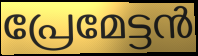
പ്രേമേട്ടൻ